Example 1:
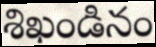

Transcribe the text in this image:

శిఖండినం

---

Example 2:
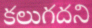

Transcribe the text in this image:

కలుగదని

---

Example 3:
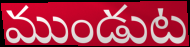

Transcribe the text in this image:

ముండుట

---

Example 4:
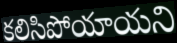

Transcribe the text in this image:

కలిసిపోయాయని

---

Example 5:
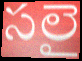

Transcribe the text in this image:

సలై